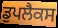
ਡੁਪਲੈਕਸ